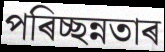
পৰিচ্ছন্নতাৰ